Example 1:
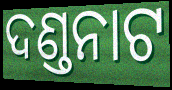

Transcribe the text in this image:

ଦଣ୍ଡନାଟ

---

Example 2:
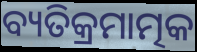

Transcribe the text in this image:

ବ୍ୟତିକ୍ରମାତ୍ମକ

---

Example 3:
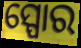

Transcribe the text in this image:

ସ୍ପୋର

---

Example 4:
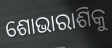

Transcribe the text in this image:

ଶୋଭାରାଶିକୁ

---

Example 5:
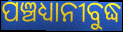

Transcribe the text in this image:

ପଞ୍ଚଧ୍ୟାନୀବୁଦ୍ଧ